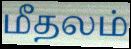
மீதலம்